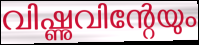
വിഷ്ണുവിന്റേയും